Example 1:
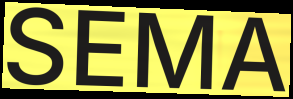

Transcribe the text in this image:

SEMA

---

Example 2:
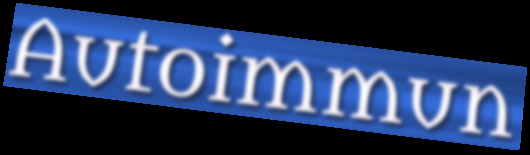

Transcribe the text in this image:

Autoimmun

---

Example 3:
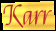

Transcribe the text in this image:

Karr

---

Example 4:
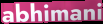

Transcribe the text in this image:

abhimani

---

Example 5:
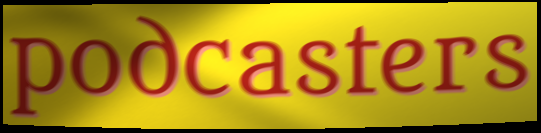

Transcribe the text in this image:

podcasters